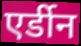
एर्डीन